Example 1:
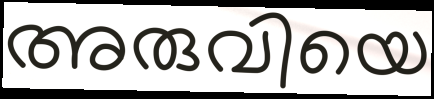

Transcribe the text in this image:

അരുവിയെ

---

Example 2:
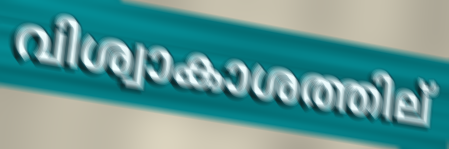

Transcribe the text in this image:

വിശ്വാകാശത്തില്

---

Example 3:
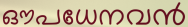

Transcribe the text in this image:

ഔപധേനവൻ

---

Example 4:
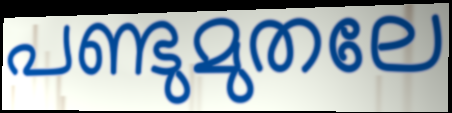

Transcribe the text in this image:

പണ്ടുമുതലേ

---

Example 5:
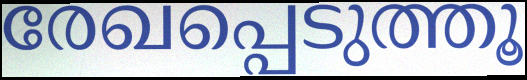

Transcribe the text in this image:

രേഖപ്പെടുത്തൂ